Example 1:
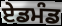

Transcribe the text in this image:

ਏਡਮੰਡ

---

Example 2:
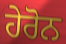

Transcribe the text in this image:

ਹੇਰੋਨ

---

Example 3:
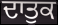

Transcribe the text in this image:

ਦਾਤੁਕ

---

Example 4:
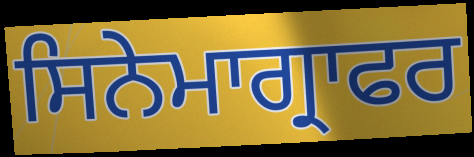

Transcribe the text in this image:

ਸਿਨੇਮਾਗ੍ਰਾਫਰ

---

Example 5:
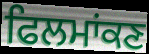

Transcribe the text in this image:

ਫਿਲਮਾਂਕਣ